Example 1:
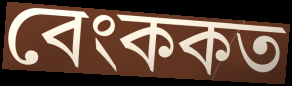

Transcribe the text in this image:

বেংককত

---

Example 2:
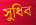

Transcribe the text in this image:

সুধিব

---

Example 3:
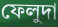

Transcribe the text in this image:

ফেলুদা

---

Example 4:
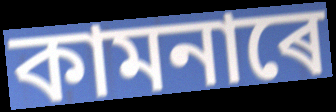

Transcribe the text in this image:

কামনাৰে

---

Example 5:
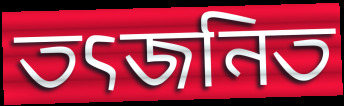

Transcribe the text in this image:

তৎজনিত